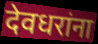
देवधरांना